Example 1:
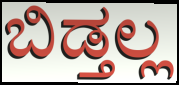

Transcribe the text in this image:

ಬಿಡ್ತಲ್ಲ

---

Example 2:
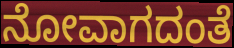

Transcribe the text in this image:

ನೋವಾಗದಂತೆ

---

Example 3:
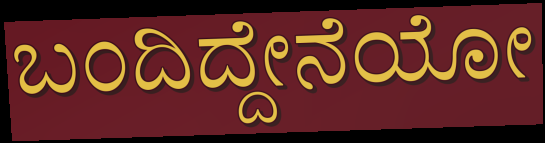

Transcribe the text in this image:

ಬಂದಿದ್ದೇನೆಯೋ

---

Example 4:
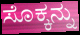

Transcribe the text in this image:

ಸೊಕ್ಕನ್ನು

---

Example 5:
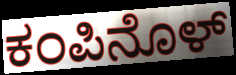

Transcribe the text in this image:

ಕಂಪಿನೊಳ್